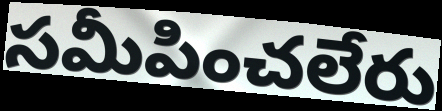
సమీపించలేరు